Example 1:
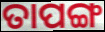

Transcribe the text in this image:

ତାପଙ୍ଗ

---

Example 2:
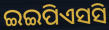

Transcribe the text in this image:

ଇଇପିଏସସି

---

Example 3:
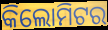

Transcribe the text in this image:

କିଲୋମିଟର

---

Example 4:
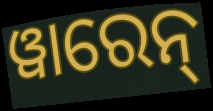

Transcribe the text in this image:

ୱାରେନ୍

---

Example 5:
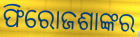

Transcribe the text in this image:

ଫିରୋଜଶାଙ୍କର